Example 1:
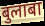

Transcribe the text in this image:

बुलाबा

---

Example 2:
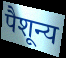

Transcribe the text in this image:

पैशून्य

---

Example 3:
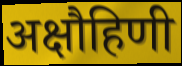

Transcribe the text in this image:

अक्षौहिणी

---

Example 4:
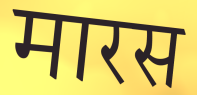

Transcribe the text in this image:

मारस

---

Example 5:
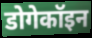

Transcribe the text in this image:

डोगेकॉइन